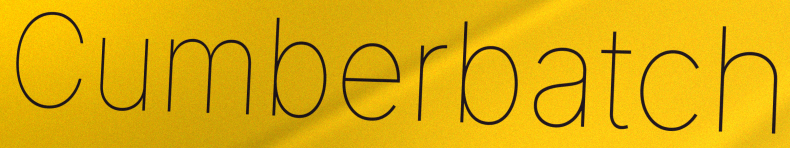
Cumberbatch